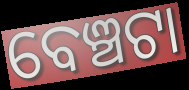
ବେଞ୍ଚଟା